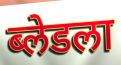
ब्लेडला